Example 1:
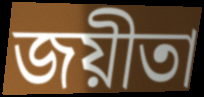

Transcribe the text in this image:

জয়ীতা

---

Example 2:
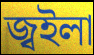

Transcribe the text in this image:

জ্বইলা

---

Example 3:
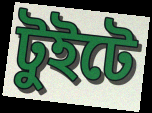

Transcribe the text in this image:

টুইটে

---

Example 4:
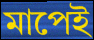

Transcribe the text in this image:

মাপেই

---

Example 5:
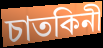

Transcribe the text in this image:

চাতকিনী